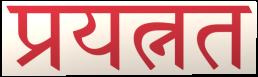
प्रयत्नत